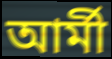
আৰ্মী